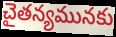
చైతన్యమునకు